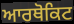
ਆਰਥੋਕਿਟ